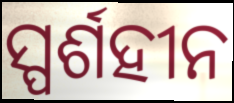
ସ୍ପର୍ଶହୀନ